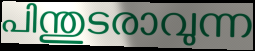
പിന്തുടരാവുന്ന